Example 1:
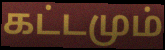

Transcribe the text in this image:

கட்டமும்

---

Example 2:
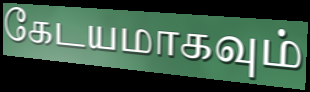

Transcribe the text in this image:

கேடயமாகவும்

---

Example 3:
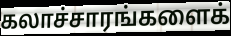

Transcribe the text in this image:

கலாச்சாரங்களைக்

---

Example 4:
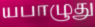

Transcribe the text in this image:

யபாழுது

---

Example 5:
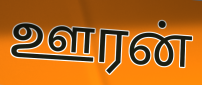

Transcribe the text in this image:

ஊரன்